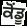
ਕੋਂਡੂ